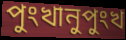
পুংখানুপুংখ